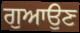
ਗੁਆਉਣ